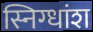
स्निग्धांश